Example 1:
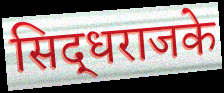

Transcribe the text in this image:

सिद्धराजके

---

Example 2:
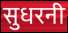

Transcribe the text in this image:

सुधरनी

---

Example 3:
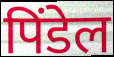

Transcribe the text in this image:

पिंडेल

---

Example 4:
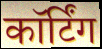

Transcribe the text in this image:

कॉर्टिंग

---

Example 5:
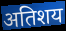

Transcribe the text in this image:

अतिशय